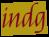
indg